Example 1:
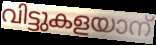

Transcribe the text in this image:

വിട്ടുകളയാന്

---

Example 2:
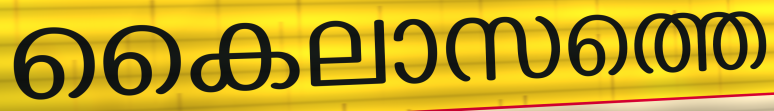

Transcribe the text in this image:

കൈലാസത്തെ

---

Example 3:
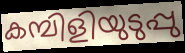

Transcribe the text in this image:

കമ്പിളിയുടുപ്പു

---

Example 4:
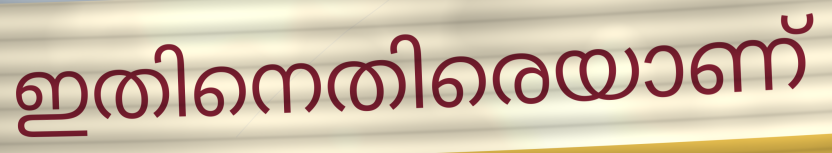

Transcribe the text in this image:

ഇതിനെതിരെയാണ്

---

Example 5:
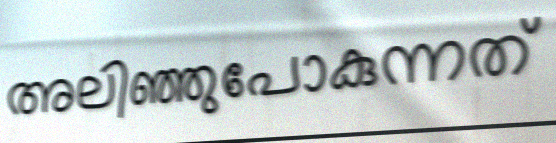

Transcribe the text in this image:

അലിഞ്ഞുപോകുന്നത്